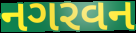
નગરવન